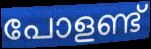
പോളണ്ട്